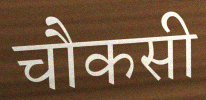
चौकसी